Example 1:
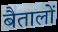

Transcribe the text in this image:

बैतालों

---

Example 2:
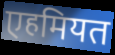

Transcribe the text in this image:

एहमियत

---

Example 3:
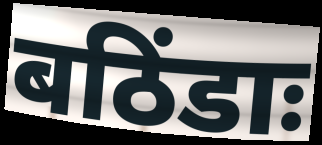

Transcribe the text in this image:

बठिंडाः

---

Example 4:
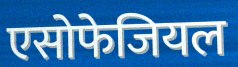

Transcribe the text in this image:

एसोफेजियल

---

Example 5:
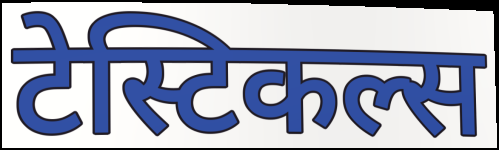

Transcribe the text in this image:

टेस्टिकल्स